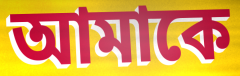
আমাকে